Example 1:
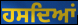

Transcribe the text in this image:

ਹਸਦਿਆਂ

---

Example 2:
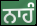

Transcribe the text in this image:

ਨਾਹੰ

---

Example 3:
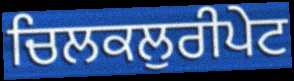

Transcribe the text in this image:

ਚਿਲਕਲੁਰੀਪੇਟ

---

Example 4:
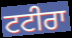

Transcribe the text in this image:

ਟਟੀਰਾ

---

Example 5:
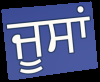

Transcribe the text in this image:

ਜੂਸਾਂ